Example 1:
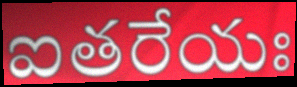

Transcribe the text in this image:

ఐతరేయః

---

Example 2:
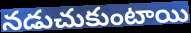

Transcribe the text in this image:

నడుచుకుంటాయి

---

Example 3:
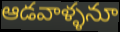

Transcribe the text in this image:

ఆడవాళ్ళనూ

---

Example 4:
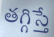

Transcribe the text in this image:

తగ్గిస్తే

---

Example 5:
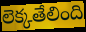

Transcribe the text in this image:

లెక్కతేలింది